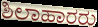
ಶಿಲಾಹಾರರು